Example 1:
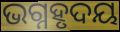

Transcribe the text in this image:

ଭଗ୍ନହୃଦୟ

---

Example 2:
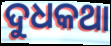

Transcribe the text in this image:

ଦୁଧକଥା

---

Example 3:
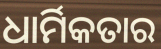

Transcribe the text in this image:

ଧାର୍ମିକତାର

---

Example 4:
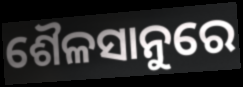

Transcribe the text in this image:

ଶୈଳସାନୁରେ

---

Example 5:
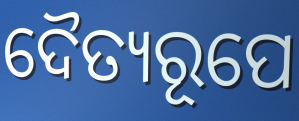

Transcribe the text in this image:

ଦୈତ୍ୟରୂପେ